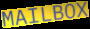
MAILBOX